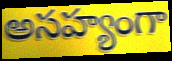
అసహ్యంగా